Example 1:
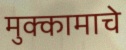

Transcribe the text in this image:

मुक्कामाचे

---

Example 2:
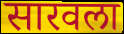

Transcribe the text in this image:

सारवला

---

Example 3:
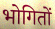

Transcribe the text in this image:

भोगितों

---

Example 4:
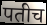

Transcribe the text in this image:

पतीच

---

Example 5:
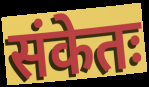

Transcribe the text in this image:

संकेतः